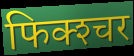
फिक्श्चर